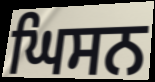
ਘਿਸਨ